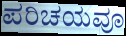
ಪರಿಚಯವೂ